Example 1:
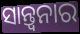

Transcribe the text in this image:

ସାନ୍ତ୍ୱନାର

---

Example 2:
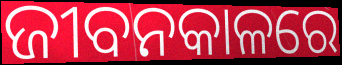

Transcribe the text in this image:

ଜୀବନକାଳରେ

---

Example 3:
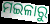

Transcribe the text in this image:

ମଇଳାରୁ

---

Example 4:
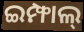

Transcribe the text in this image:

ଇମ୍ଫାଲ୍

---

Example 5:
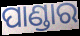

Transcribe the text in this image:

ପାଣ୍ଡାର